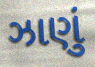
ઝાણું